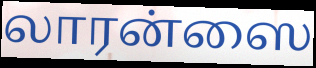
லாரன்ஸை